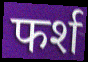
फर्श